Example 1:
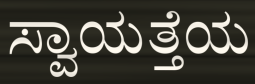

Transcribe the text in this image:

ಸ್ವಾಯತ್ತೆಯ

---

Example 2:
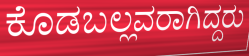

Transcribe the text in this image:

ಕೊಡಬಲ್ಲವರಾಗಿದ್ದರು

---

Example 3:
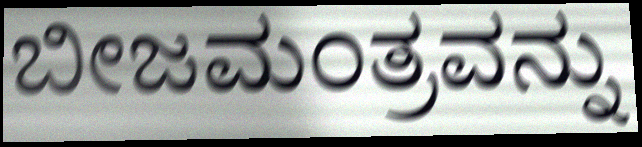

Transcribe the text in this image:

ಬೀಜಮಂತ್ರವನ್ನು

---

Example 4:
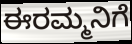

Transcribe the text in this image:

ಈರಮ್ಮನಿಗೆ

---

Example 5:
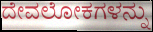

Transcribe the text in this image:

ದೇವಲೋಕಗಳನ್ನು